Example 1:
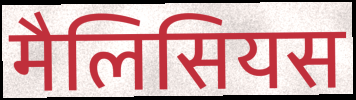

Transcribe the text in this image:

मैलिसियस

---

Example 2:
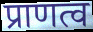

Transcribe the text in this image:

प्राणत्व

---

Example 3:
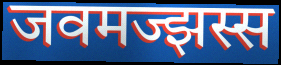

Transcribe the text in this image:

जवमज्झस्स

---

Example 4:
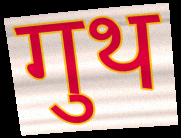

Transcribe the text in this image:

गुथ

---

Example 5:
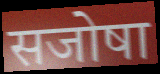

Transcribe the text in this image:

सजोषा